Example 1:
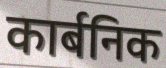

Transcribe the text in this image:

कार्बनिक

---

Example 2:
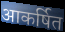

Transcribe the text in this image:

आकर्षित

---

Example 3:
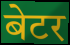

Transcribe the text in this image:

बेटर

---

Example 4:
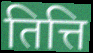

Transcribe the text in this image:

तित्ति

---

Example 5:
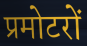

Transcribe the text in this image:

प्रमोटरों